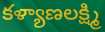
కళ్యాణలక్ష్మి